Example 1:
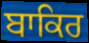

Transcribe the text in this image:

ਬਾਕਿਰ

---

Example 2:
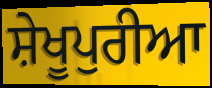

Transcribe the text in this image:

ਸ਼ੇਖੂਪੁਰੀਆ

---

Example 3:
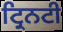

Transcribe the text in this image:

ਟ੍ਰਿਨਟੀ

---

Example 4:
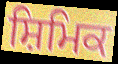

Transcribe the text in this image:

ਸ਼ਿਮਿਕ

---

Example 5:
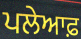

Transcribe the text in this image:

ਪਲੇਆਫ਼